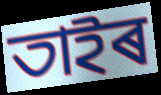
তাইৰ